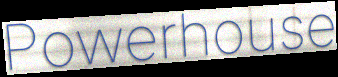
Powerhouse